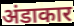
अंडाकार